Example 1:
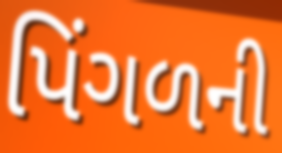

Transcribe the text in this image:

પિંગળની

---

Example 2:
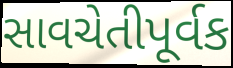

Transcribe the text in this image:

સાવચેતીપૂર્વક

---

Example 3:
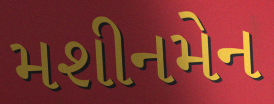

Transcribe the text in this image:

મશીનમેન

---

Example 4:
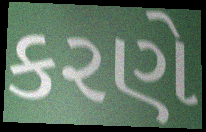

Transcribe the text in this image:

કરણે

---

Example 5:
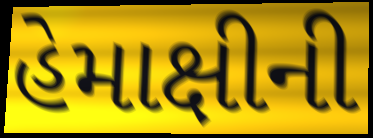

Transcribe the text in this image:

હેમાક્ષીની